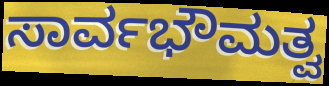
ಸಾರ್ವಭೌಮತ್ವ